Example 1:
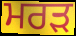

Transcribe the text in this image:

ਮਰੜ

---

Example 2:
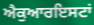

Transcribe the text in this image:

ਐਕੁਆਰਇਸਟਾਂ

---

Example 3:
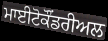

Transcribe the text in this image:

ਮਾਈਟੋਕੌਂਡਰੀਅਲ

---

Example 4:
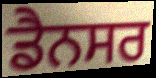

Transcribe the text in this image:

ਡੈਨਸਰ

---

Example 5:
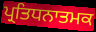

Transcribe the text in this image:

ਪ੍ਰਤਿਧਨਾਤਮਕ